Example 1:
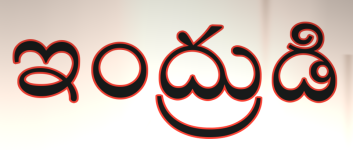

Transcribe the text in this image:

ఇంద్రుడి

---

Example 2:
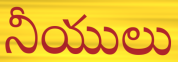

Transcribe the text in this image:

నీయులు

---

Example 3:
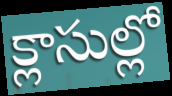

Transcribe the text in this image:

క్లాసుల్లో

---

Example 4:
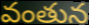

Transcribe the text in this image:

వంతున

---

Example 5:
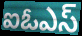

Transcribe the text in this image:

ఐఓఎస్